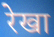
रेखा